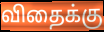
விதைக்கு